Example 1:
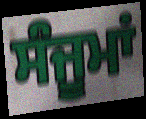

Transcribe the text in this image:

ਸੰਜੂਮਾਂ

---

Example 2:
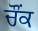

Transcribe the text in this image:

ਚੌਂਕ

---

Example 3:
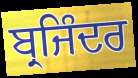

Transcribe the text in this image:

ਬ੍ਰਜਿੰਦਰ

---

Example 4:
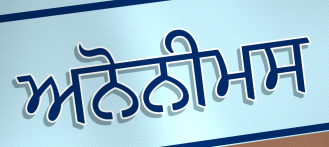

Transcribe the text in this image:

ਅਨੋਨੀਮਸ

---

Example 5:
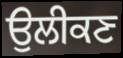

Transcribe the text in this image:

ਉਲੀਕਣ